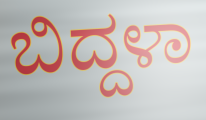
ಬಿದ್ದಳಾ